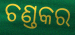
ଚଣ୍ଡକର